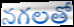
నగలతో